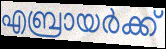
എബ്രായർക്ക്